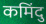
कमिंदु